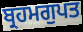
ਬ੍ਰਹਮਗੁਪਤ